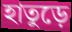
হাতুড়ে